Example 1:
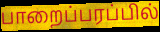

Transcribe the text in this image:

பாறைப்பரப்பில்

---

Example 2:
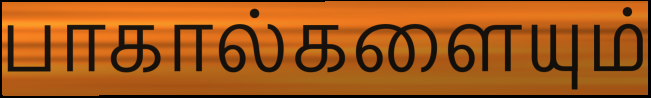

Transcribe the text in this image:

பாகால்களையும்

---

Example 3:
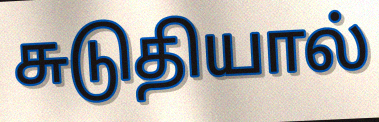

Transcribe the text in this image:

சுடுதியால்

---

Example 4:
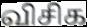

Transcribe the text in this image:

விசிக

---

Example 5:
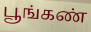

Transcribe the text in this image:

பூங்கண்